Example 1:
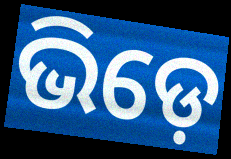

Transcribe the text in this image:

ଭିଡ଼େ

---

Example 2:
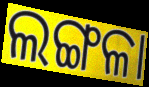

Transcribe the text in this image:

ଲଙ୍ଗଳା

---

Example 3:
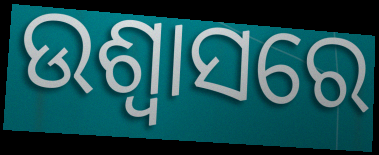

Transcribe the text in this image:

ଉଶ୍ଵାସରେ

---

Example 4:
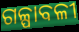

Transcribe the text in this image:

ଗଳ୍ପାବଳୀ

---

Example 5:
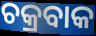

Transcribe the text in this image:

ଚକ୍ରବାକ